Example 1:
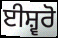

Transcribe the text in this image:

ਈਸ਼੍ਵਰੋ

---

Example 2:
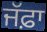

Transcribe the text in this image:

ਜੱਫ਼ਾ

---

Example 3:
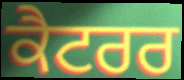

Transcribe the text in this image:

ਕੈਟਰਰ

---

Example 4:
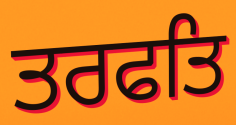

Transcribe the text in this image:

ਤਰਫਤਿ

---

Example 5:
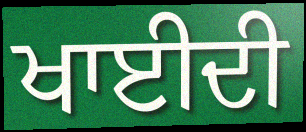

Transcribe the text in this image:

ਖਾਈਦੀ